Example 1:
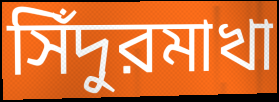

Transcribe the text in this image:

সিঁদুরমাখা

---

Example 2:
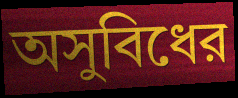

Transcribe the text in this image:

অসুবিধের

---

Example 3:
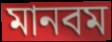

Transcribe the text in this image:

মানবম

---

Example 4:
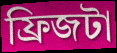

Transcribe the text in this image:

ফ্রিজটা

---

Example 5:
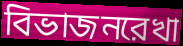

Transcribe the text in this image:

বিভাজনরেখা